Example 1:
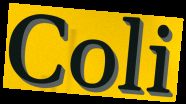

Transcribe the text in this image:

Coli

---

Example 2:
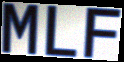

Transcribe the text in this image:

MLF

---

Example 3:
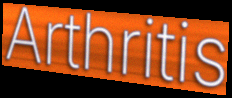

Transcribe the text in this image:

Arthritis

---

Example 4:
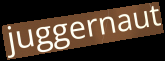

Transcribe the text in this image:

juggernaut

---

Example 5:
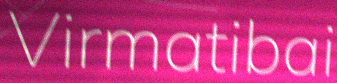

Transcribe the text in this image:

Virmatibai